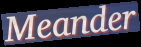
Meander